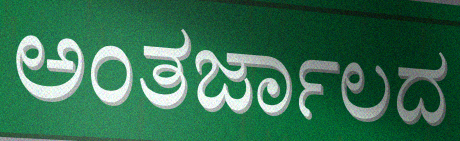
ಅಂತರ್ಜಾಲದ